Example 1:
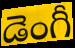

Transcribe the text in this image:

డెంగీ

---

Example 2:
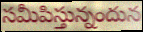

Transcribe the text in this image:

సమీపిస్తున్నందున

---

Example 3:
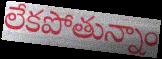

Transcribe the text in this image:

లేకపోతున్నాం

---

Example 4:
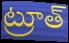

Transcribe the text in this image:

ట్రూత్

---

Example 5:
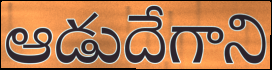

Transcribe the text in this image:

ఆడుదేగాని